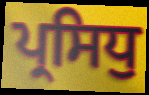
ਪ੍ਰਸਿਧੁ